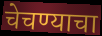
चेचण्याचा